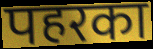
पहरका